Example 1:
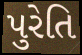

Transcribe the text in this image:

પુરેતિ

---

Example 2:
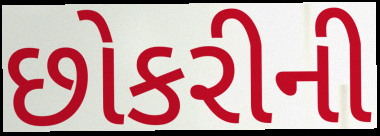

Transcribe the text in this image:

છોકરીની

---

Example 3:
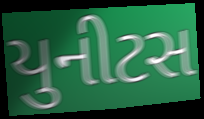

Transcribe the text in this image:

યુનીટસ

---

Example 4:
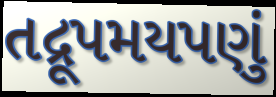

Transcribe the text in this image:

તદ્રૂપમયપણું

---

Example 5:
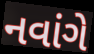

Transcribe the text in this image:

નવાંગે